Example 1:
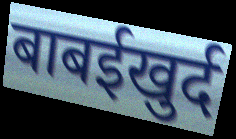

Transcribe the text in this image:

बाबईखुर्द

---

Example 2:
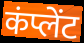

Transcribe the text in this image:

कंप्लेंट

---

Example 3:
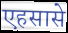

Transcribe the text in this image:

एहसासे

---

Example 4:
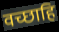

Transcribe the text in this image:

वच्छाहि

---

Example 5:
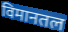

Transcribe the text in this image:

विमानतल